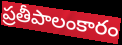
ప్రతీపాలంకారం